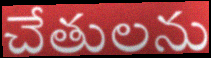
చేతులను